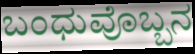
ಬಂಧುವೊಬ್ಬನ